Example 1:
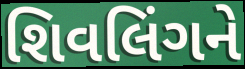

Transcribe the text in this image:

શિવલિંગને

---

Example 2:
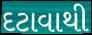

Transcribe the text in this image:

દટાવાથી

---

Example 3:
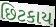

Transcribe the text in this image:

છિટકાય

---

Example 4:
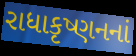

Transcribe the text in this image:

રાધાકૃષ્ણનનાં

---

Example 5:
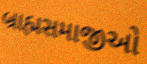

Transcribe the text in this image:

બ્રાહ્મસમાજીઓ